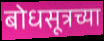
बोधसूत्रच्या